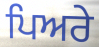
ਪਿਅਰੇ